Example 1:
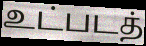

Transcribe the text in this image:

உட்படத்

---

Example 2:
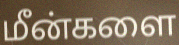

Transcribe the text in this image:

மீன்களை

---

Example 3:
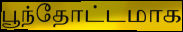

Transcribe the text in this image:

பூந்தோட்டமாக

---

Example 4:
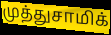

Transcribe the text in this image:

முத்துசாமிக்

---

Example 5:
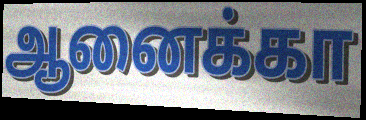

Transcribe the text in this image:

ஆனைக்கா